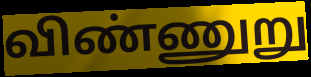
விண்ணுறு